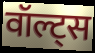
वॉल्ट्स